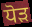
ਧੋੜ